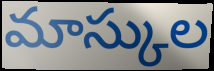
మాస్కుల